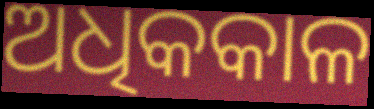
ଅଧିକକାଳ